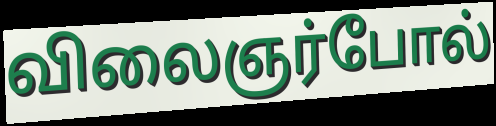
விலைஞர்போல்